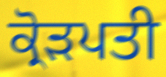
ਕ੍ਰੋੜਪਤੀ